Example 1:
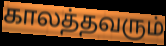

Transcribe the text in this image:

காலத்தவரும்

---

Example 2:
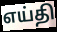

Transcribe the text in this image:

எய்தி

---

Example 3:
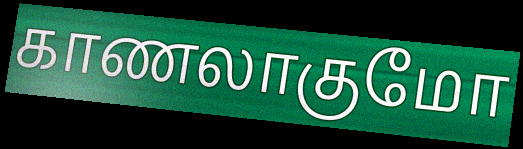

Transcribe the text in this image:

காணலாகுமோ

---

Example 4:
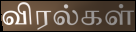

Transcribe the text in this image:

விரல்கள்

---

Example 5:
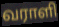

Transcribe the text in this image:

வராளி